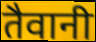
तैवानी